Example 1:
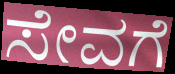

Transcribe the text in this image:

ಸೇವಗೆ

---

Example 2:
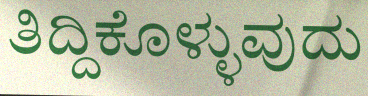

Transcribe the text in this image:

ತಿದ್ದಿಕೊಳ್ಳುವುದು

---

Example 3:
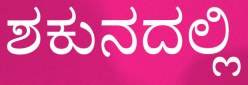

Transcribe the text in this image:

ಶಕುನದಲ್ಲಿ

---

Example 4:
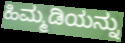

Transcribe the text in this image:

ಹಿಮ್ಮಡಿಯನ್ನು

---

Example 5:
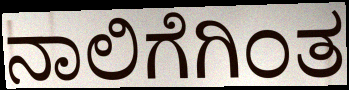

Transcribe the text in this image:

ನಾಲಿಗೆಗಿಂತ